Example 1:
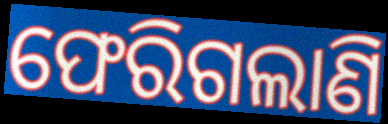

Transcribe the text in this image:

ଫେରିଗଲାଣି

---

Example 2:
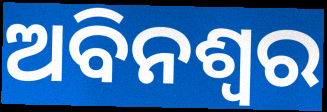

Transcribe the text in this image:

ଅବିନଶ୍ଵର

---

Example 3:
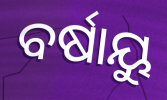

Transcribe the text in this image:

ବର୍ଷାୟୁ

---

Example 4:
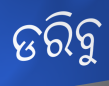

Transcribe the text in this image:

ଡରିବୁ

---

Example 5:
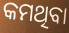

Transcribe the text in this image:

କମଥିବା